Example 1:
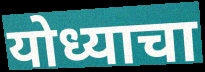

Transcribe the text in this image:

योध्याचा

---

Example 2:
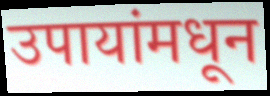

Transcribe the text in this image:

उपायांमधून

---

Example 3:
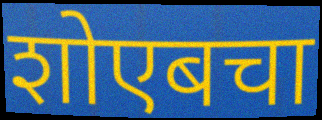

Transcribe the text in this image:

शोएबचा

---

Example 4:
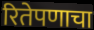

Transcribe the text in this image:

रितेपणाचा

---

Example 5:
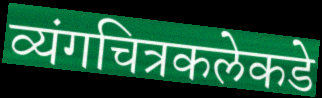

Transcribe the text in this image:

व्यंगचित्रकलेकडे